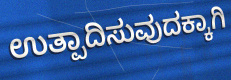
ಉತ್ಪಾದಿಸುವುದಕ್ಕಾಗಿ